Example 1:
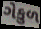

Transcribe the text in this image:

ગેકુળ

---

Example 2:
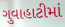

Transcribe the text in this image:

ગુવાહાટીમાં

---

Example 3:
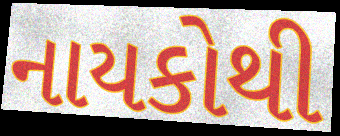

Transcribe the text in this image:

નાયકોથી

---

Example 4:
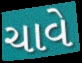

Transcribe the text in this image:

ચાવે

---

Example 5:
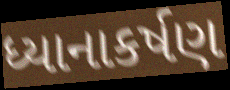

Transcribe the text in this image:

ધ્યાનાકર્ષણ